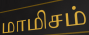
மாமிசம்